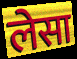
लेसा